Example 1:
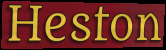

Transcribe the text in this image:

Heston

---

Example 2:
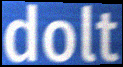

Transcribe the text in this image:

dolt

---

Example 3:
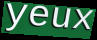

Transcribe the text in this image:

yeux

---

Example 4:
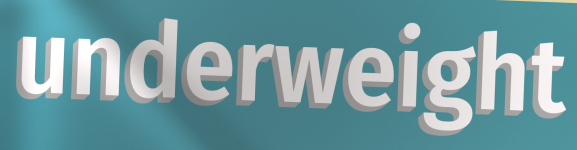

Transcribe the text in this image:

underweight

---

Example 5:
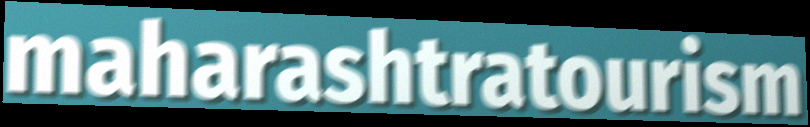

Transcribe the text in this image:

maharashtratourism